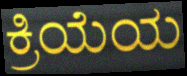
ಕ್ರಿಯೆಯ